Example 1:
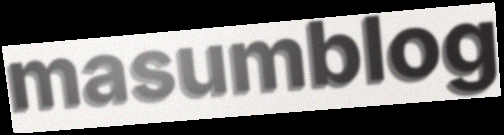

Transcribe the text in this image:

masumblog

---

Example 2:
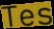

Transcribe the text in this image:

Tes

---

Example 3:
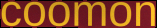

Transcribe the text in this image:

coomon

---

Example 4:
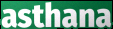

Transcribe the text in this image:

asthana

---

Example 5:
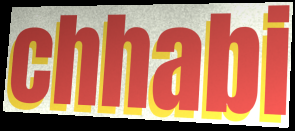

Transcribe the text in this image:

chhabi